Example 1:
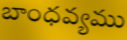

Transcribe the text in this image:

బాంధవ్యము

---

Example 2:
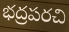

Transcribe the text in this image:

భద్రపరచి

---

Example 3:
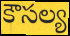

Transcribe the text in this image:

కౌసల్య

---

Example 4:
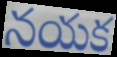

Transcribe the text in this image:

నయక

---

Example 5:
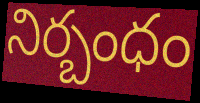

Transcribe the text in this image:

నిర్బంధం